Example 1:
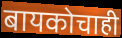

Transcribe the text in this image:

बायकोचाही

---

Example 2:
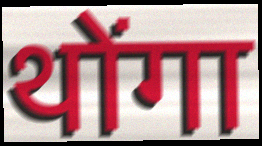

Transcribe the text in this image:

थोंगा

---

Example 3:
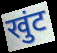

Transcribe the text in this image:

खुंट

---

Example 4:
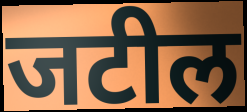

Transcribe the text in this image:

जटील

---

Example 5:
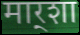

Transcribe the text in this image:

मार्शा